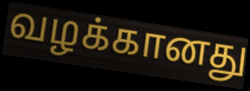
வழக்கானது